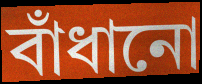
বাঁধানো